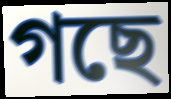
গছে